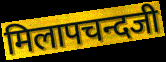
मिलापचन्दजी